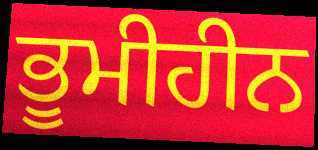
ਭੂਮੀਹੀਨ